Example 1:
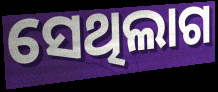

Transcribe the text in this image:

ସେଥିଲାଗ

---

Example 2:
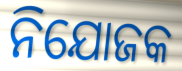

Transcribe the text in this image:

ନିଯୋଜକ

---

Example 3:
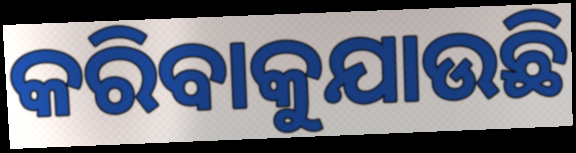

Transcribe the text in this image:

କରିବାକୁଯାଉଛି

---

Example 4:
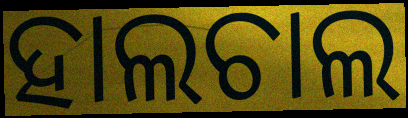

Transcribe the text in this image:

ହାଲଚାଲ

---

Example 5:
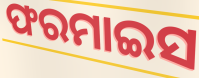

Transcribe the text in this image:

ଫରମାଇସ